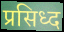
प्रसिध्द